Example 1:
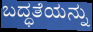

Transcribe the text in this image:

ಬದ್ಧತೆಯನ್ನು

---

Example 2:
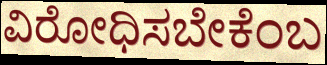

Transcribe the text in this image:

ವಿರೋಧಿಸಬೇಕೆಂಬ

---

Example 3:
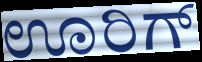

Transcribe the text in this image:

ಊರಿಗ್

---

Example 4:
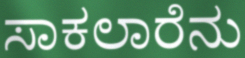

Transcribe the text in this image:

ಸಾಕಲಾರೆನು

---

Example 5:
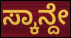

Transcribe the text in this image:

ಸ್ಕಾನ್ದೇ